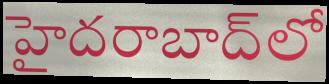
హైదరాబాద్‌లో